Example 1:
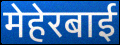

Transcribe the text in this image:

मेहेरबाई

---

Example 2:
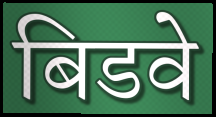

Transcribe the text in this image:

बिडवे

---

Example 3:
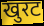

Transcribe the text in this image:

खुरट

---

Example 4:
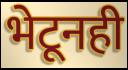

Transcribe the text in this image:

भेटूनही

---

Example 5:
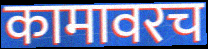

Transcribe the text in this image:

कामावरच